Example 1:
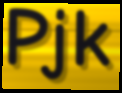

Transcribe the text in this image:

Pjk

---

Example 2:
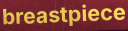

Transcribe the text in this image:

breastpiece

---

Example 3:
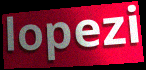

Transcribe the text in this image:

lopezi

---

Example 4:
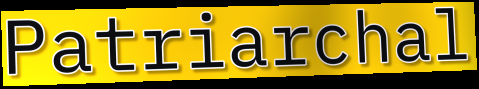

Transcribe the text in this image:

Patriarchal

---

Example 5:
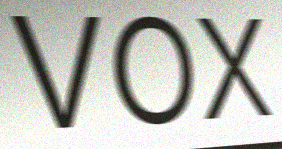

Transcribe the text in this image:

vox